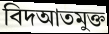
বিদআতমুক্ত